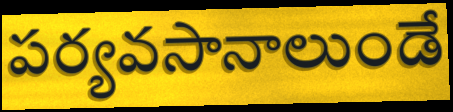
పర్యవసానాలుండే